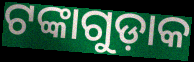
ଟଙ୍କାଗୁଡ଼ାକ